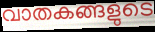
വാതകങ്ങളുടെ